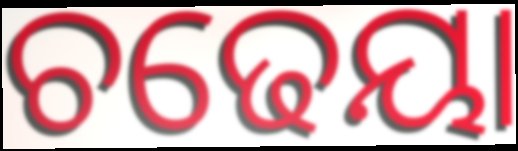
ଚଢେୟା